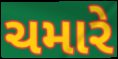
ચમારે